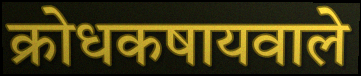
क्रोधकषायवाले